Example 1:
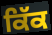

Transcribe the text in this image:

ਕਿੱਕ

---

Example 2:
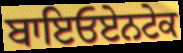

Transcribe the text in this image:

ਬਾਇਓਏਨਟੇਕ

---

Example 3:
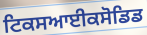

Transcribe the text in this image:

ਟਿਕਸਆਈਕਸੋਡਿਡ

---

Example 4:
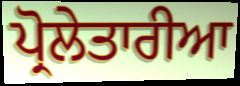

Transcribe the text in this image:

ਪ੍ਰੋਲੇਤਾਰੀਆ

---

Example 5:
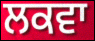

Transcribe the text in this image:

ਲਕਵਾ